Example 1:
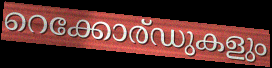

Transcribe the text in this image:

റെക്കോര്ഡുകളും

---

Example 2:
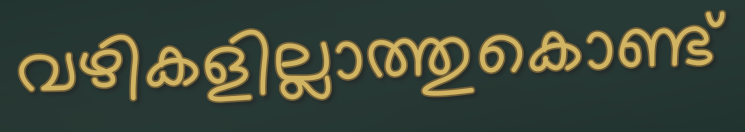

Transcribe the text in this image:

വഴികളില്ലാത്തുകൊണ്ട്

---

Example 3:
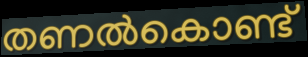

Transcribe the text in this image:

തണൽകൊണ്ട്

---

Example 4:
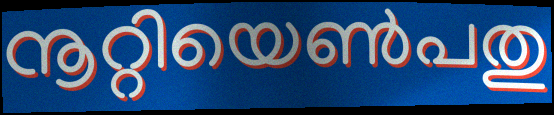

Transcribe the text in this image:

നൂറ്റിയെൺപതു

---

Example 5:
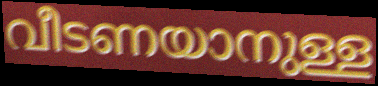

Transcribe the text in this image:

വീടണയാനുള്ള